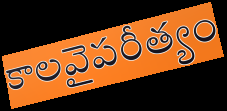
కాలవైపరీత్యం